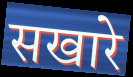
सखारे